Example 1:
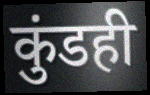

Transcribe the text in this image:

कुंडही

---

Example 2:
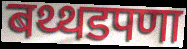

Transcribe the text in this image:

बथ्थडपणा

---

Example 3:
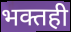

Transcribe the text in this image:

भक्तही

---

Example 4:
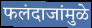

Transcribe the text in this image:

फलंदाजांमुळे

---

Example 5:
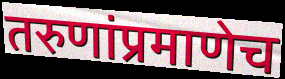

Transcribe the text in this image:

तरुणांप्रमाणेच